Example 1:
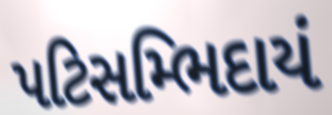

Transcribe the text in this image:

પટિસમ્ભિદાયં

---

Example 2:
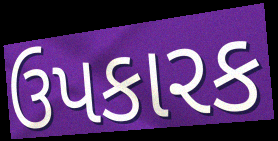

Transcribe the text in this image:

ઉપકારક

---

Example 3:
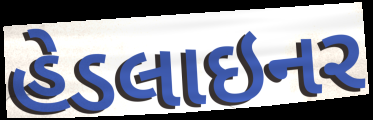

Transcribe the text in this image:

હેડલાઇનર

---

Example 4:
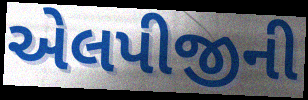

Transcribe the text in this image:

એલપીજીની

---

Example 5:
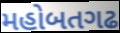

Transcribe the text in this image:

મહોબતગઢ